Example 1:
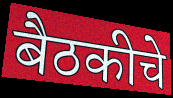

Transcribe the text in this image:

बैठकीचे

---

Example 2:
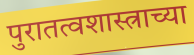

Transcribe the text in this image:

पुरातत्वशास्त्राच्या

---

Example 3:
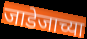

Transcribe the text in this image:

जाडेजाच्या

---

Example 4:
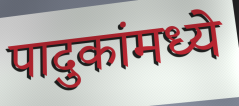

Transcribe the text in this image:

पादुकांमध्ये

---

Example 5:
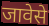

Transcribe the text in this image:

जावेसे